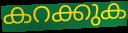
കറക്കുക